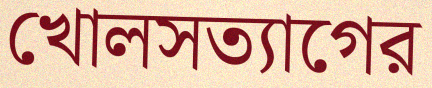
খোলসত্যাগের